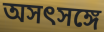
অসৎসঙ্গে